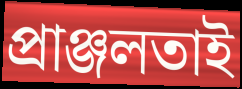
প্রাঞ্জলতাই